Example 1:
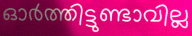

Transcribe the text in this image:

ഓർത്തിട്ടുണ്ടാവില്ല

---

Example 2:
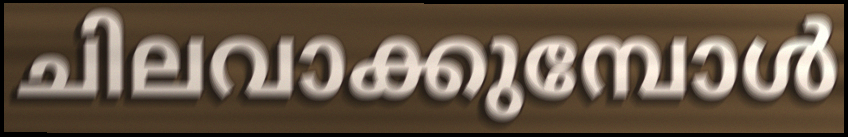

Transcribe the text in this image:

ചിലവാക്കുമ്പോൾ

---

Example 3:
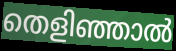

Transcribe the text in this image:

തെളിഞ്ഞാൽ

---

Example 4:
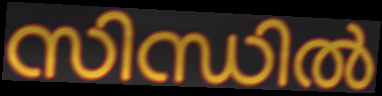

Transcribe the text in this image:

സിന്ധിൽ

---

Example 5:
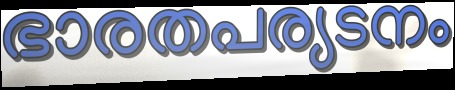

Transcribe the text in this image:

ഭാരതപര്യടനം